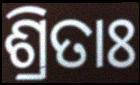
ଶ୍ରିତାଃ